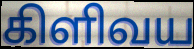
கிளிவய